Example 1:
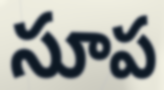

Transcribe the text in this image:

సూప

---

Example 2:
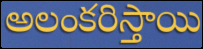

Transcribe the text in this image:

అలంకరిస్తాయి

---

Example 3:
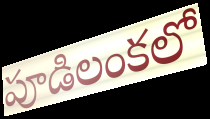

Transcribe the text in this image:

పూడిలంకలో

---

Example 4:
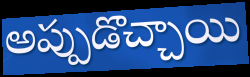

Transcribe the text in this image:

అప్పుడొచ్చాయి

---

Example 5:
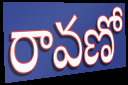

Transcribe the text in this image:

రావణో